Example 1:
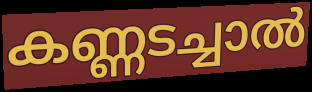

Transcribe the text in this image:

കണ്ണടച്ചാൽ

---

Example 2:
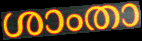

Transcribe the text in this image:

ശാംതാ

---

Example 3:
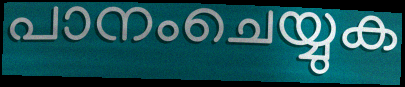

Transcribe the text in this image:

പാനംചെയ്യുക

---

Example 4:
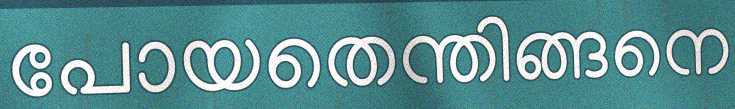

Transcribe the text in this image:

പോയതെന്തിങ്ങനെ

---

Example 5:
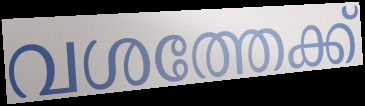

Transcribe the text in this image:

വശത്തേക്ക്